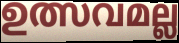
ഉത്സവമല്ല